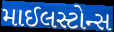
માઈલસ્ટોન્સ